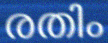
രതിം